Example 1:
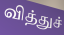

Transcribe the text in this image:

வித்துச்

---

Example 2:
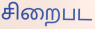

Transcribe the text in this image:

சிறைபட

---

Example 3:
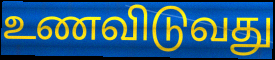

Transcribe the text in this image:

உணவிடுவது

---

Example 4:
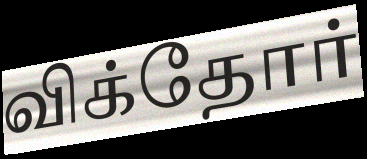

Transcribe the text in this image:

விக்தோர்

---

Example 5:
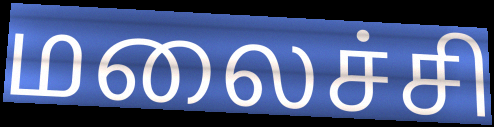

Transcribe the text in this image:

மலைச்சி